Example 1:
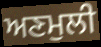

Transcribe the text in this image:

ਅਣਮੁਲੀ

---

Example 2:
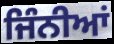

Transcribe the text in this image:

ਜਿੰਨੀਆਂ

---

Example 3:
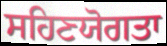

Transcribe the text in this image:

ਸਹਿਣਯੋਗਤਾ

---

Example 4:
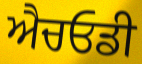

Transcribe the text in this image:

ਐਚਓਡੀ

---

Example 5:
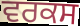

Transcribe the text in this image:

ਵਰਕਸ